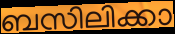
ബസിലിക്കാ